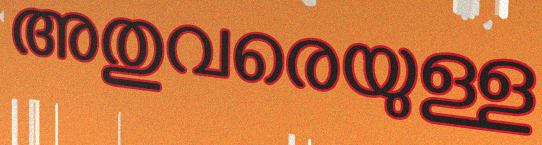
അതുവരെയുള്ള